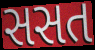
સસત